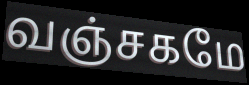
வஞ்சகமே